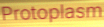
Protoplasm